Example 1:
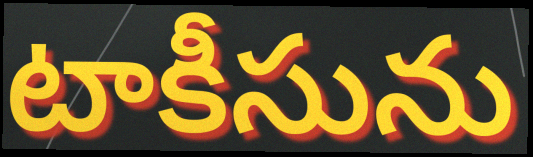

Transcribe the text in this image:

టాకీసును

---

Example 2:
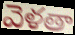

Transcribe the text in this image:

వెళతా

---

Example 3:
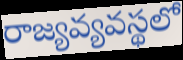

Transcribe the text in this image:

రాజ్యవ్యవస్థలో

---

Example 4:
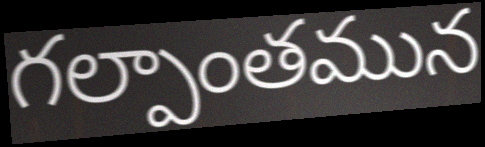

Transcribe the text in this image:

గల్పాంతమున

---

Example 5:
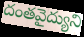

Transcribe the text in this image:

దంతవైద్యుని